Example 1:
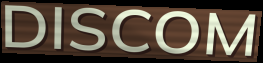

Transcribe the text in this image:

DISCOM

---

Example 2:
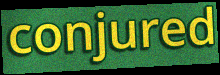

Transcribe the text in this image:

conjured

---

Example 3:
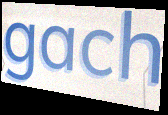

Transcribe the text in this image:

gach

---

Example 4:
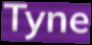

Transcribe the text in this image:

Tyne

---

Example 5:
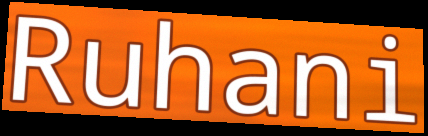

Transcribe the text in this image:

Ruhani